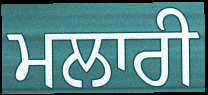
ਮਲਾਰੀ